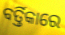
ବର୍ତ୍ତିକାରେ